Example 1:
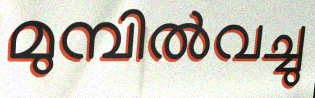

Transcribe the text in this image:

മുമ്പിൽവച്ചു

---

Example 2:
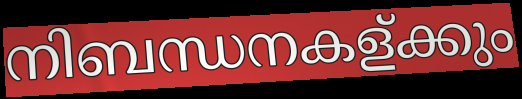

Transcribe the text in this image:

നിബന്ധനകള്ക്കും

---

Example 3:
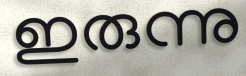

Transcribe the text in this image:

ഇരുന്നു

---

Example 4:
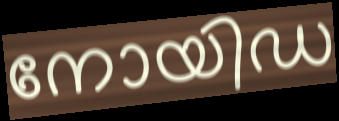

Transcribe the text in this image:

നോയിഡ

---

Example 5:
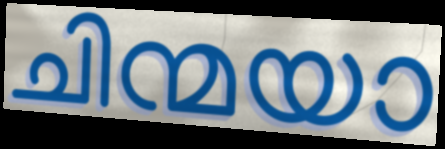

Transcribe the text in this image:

ചിന്മയാ